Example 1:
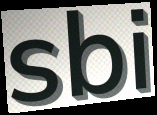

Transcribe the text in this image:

sbi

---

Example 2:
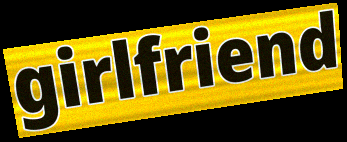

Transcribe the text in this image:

girlfriend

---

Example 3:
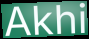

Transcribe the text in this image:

Akhi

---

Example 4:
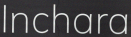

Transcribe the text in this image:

Inchara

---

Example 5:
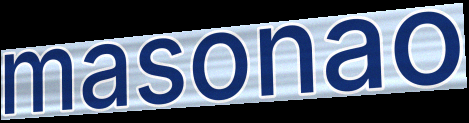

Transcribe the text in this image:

masonao